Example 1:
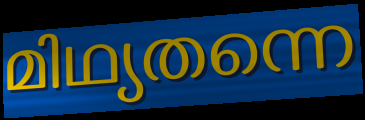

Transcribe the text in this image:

മിഥ്യതന്നെ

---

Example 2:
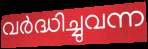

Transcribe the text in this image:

വർദ്ധിച്ചുവന്ന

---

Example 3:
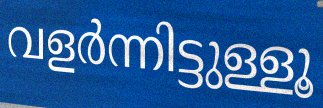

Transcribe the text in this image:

വളർന്നിട്ടുള്ളൂ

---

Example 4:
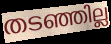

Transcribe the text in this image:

തടഞ്ഞില്ല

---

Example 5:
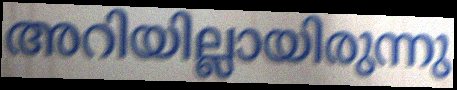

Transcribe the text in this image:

അറിയില്ലായിരുന്നു